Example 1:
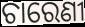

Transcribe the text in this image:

ଚାରେଣୀ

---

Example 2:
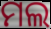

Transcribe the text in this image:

ମଲ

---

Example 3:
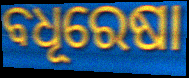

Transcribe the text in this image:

ବଧୂରେଷା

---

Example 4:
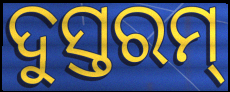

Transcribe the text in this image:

ଦୁସ୍ତରମ୍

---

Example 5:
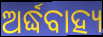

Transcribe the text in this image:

ଅର୍ଦ୍ଧବାହ୍ୟ